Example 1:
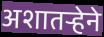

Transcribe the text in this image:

अशातऱ्हेने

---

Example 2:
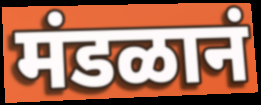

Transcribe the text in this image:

मंडळानं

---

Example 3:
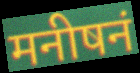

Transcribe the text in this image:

मनीषनं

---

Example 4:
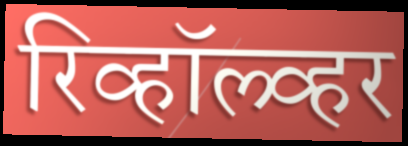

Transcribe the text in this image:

रिव्हॉल्व्हर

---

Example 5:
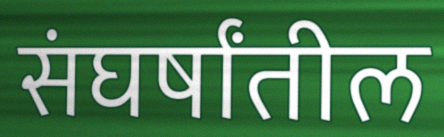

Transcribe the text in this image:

संघर्षांतील